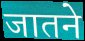
जातने